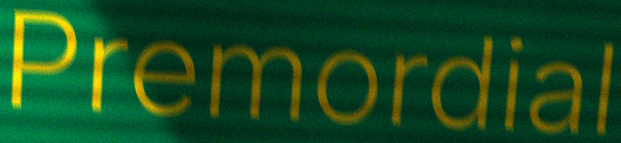
Premordial